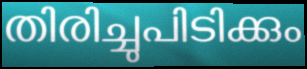
തിരിച്ചുപിടിക്കും